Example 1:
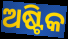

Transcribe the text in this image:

ଅଷ୍ଟିକ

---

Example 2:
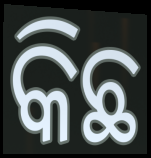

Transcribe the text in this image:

କିଛ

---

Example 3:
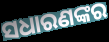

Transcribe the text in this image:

ସଧାରଣଙ୍କର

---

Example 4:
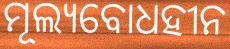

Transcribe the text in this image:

ମୂଲ୍ୟବୋଧହୀନ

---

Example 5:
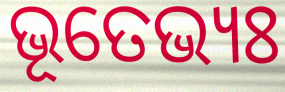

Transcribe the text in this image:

ଭୂତେଭ୍ୟଃ